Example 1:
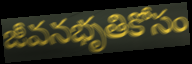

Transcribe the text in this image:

జీవనభృతికోసం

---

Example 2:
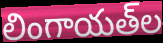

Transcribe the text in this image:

లింగాయత్‌ల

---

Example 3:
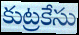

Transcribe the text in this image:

కుట్రకేసు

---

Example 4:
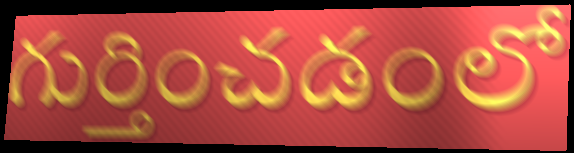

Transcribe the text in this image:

గుర్తించడంలో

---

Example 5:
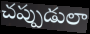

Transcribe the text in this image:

చప్పుడులా